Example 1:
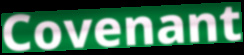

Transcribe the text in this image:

Covenant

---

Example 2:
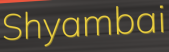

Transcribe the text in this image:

Shyambai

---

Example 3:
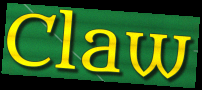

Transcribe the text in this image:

Claw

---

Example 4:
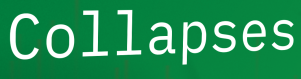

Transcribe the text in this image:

Collapses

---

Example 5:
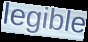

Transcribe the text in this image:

legible